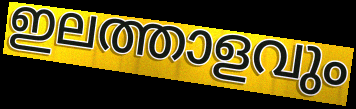
ഇലത്താളവും